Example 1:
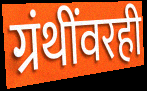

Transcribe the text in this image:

ग्रंथींवरही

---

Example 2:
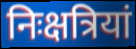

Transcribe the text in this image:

निःक्षत्रियां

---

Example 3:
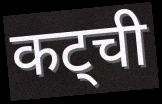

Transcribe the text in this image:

कट्ची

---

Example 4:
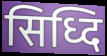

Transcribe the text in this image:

सिध्दि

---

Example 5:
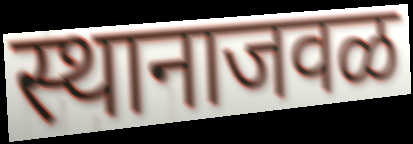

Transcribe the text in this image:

स्थानाजवळ